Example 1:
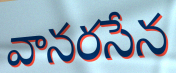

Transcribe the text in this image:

వానరసేన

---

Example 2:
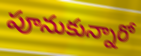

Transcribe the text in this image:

పూనుకున్నారో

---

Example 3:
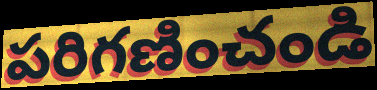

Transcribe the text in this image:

పరిగణించండి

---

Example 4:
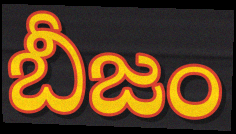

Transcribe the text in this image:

బీజం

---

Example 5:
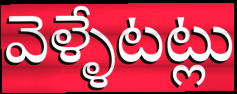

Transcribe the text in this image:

వెళ్ళేటట్లు